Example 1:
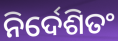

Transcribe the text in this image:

ନିର୍ଦେଶିତଂ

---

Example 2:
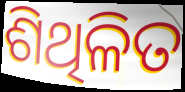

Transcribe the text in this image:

ଶିଥିଳିତ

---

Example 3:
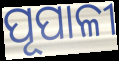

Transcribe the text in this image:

ପୂପାଳୀ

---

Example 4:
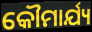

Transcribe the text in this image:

କୌମାର୍ଯ୍ୟ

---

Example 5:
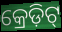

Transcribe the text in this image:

କ୍ରେଡ଼ିଟ୍